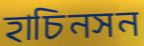
হাচিনসন